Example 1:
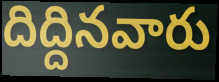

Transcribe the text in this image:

దిద్దినవారు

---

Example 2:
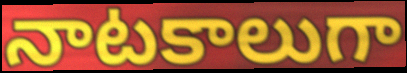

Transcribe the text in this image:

నాటకాలుగా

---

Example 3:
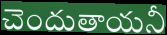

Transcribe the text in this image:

చెందుతాయనీ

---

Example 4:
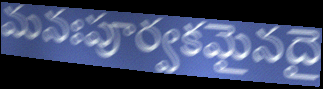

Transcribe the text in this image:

మనఃపూర్వకమైనదై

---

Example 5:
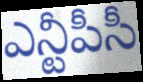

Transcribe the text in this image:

ఎన్టీపీసీ